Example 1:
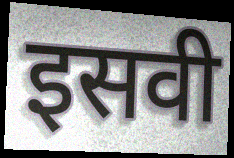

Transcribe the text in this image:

इसवी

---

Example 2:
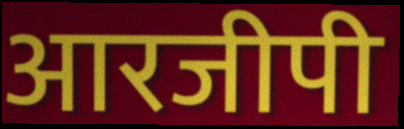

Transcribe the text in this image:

आरजीपी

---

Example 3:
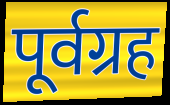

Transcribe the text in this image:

पूर्वग्रह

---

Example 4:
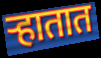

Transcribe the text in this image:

ऱ्हातात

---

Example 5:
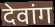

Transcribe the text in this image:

देवांग